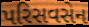
પરિસવસેન